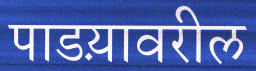
पाडय़ावरील